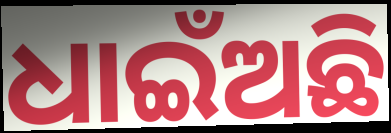
ଧାଇଁଅଛି